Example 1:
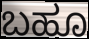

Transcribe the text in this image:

ಬಹೂ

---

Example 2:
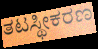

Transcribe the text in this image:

ತಟಸ್ಥೀಕರಣ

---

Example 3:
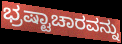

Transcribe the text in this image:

ಭ್ರಷ್ಟಾಚಾರವನ್ನು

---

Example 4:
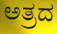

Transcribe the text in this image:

ಅತ್ರದ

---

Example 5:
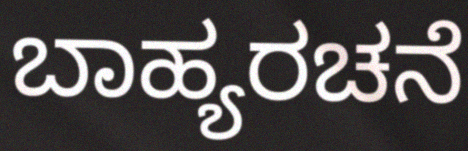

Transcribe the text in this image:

ಬಾಹ್ಯರಚನೆ